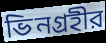
ভিনগ্রহীর